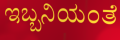
ಇಬ್ಬನಿಯಂತೆ